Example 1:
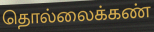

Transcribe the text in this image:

தொல்லைக்கண்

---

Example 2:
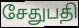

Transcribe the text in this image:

சேதுபதி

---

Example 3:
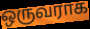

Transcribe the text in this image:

ஒருவராக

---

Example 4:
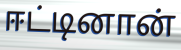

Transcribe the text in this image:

ஈட்டினான்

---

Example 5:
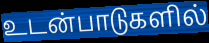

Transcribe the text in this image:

உடன்பாடுகளில்